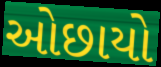
ઓછાયો